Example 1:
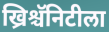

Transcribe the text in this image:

ख्रिश्चॅनिटीला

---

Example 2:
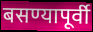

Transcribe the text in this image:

बसण्यापूर्वी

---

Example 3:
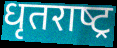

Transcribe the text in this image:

धृतराष्ट्र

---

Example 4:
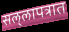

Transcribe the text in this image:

सल्लापत्रात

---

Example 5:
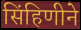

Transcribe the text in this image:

सिंहिणीने